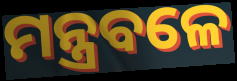
ମନ୍ତ୍ରବଳେ